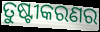
ତୁଷ୍ଟୀକରଣର